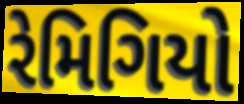
રેમિગિયો